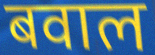
बवाल